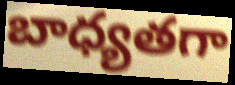
బాధ్యతగా